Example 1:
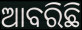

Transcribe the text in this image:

ଆବରିଛି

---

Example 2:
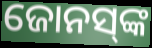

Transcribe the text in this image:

ଜୋନସ୍‌ଙ୍କ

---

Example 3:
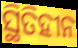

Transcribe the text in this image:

ସ୍ଥିତିହୀନ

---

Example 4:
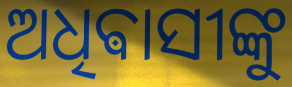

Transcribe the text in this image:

ଅଧିଵାସୀଙ୍କୁ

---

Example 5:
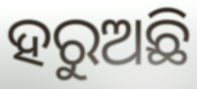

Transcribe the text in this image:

ହରୁଅଛି